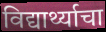
विद्यार्थ्याचा